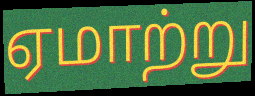
ஏமாற்று